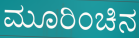
ಮೂರಿಂಚಿನ